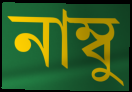
নাম্বু